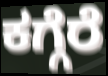
ಕಗ್ಗೆರೆ